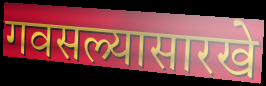
गवसल्यासारखे